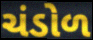
ચંડોળ